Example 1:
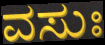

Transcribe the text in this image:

ವಸುಃ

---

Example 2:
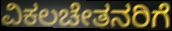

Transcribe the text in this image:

ವಿಕಲಚೇತನರಿಗೆ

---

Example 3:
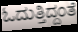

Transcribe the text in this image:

ಓದುತ್ತಿದ್ದಂತೆ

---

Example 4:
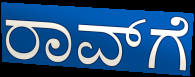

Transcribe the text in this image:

ರಾವ್‌ಗೆ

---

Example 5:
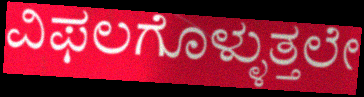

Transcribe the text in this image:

ವಿಫಲಗೊಳ್ಳುತ್ತಲೇ